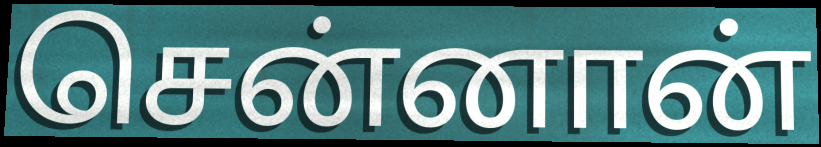
சென்னான்